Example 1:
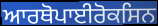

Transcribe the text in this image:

ਆਰਥੋਪਾਈਰੋਕਸਿਨ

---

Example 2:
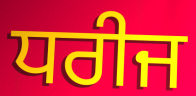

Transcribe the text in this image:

ਧਰੀਜ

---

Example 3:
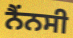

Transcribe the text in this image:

ਨੈਂਨਸੀ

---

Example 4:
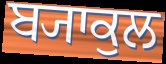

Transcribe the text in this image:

ਬ੍ਯਾਕੁਲ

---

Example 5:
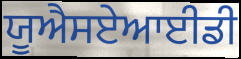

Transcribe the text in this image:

ਯੂਐਸਏਆਈਡੀ